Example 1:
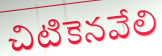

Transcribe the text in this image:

చిటికెనవేలి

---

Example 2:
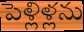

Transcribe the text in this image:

పెళ్లిళ్లను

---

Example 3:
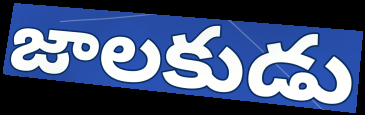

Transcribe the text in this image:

జాలకుడు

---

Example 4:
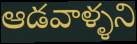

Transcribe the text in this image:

ఆడవాళ్ళని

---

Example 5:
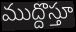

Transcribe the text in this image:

ముద్దొస్తూ